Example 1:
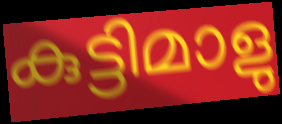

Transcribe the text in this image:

കുട്ടിമാളു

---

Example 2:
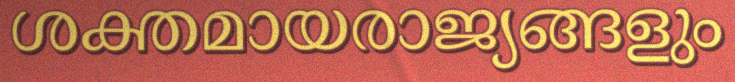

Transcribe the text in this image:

ശക്തമായരാജ്യങ്ങളും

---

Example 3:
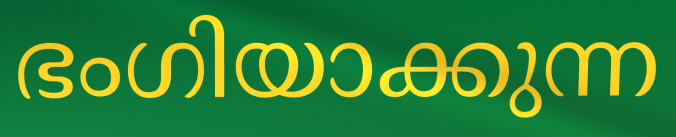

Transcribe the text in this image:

ഭംഗിയാക്കുന്ന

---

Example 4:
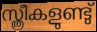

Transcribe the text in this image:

സ്ത്രീകളുണ്ടു്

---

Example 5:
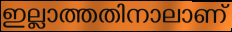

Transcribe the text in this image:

ഇല്ലാത്തതിനാലാണ്